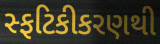
સ્ફટિકીકરણથી